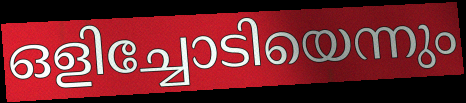
ഒളിച്ചോടിയെന്നും